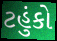
ટહુંકો